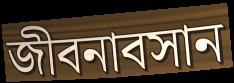
জীবনাবসান